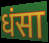
धंसा